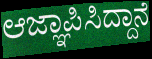
ಆಜ್ಞಾಪಿಸಿದ್ದಾನೆ